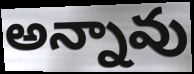
అన్నావు